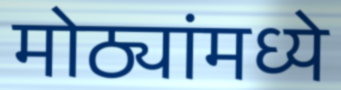
मोठ्यांमध्ये